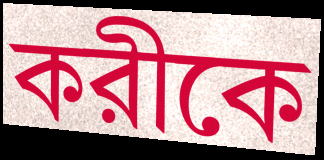
করীকে